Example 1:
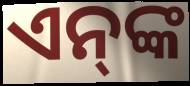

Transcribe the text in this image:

ଏନ୍‌ଙ୍କ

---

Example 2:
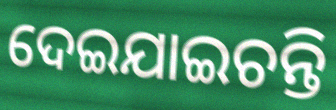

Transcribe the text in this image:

ଦେଇଯାଇଚନ୍ତି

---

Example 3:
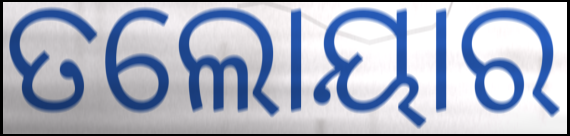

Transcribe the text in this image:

ତଲୋୟାର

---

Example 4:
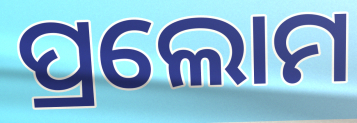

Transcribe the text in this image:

ପ୍ରଲୋମ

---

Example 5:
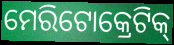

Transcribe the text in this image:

ମେରିଟୋକ୍ରେଟିକ୍